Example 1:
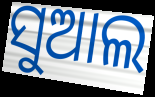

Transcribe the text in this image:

ସୁଆଲ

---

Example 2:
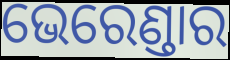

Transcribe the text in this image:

ଭେରେଣ୍ଡାର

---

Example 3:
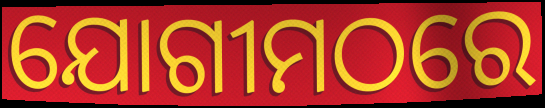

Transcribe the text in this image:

ଯୋଗୀମଠରେ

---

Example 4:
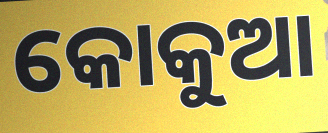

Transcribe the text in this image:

କୋକୁଆ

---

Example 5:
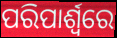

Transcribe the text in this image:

ପରିପାର୍ଶ୍ୱରେ